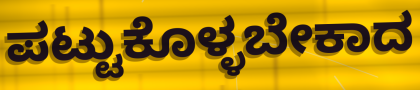
ಪಟ್ಟುಕೊಳ್ಳಬೇಕಾದ